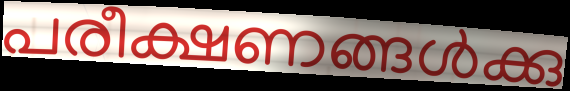
പരീക്ഷണങ്ങൾക്കു